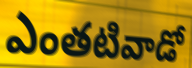
ఎంతటివాడో